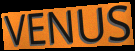
VENUS